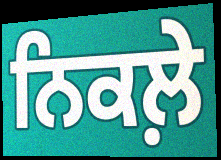
ਨਿਕਲ਼ੇ